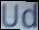
Ud